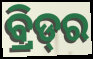
ବ୍ରିଡ୍‌ର